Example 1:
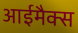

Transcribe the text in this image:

आईमैक्स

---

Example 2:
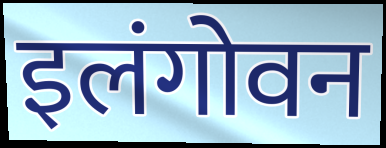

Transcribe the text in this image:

इलंगोवन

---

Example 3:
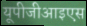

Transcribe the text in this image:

यूपीजीआइएस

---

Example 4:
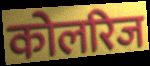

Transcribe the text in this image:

कोलरिज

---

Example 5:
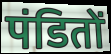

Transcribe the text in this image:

पंडितों